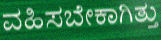
ವಹಿಸಬೇಕಾಗಿತ್ತು